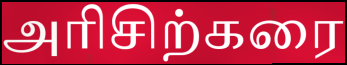
அரிசிற்கரை